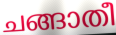
ചങ്ങാതീ